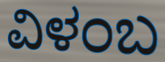
ವಿಳಂಬ